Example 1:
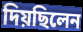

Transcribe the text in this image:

দিয়ছিলেন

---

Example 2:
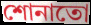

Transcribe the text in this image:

শোনাতো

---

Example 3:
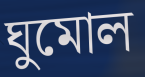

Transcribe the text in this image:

ঘুমোল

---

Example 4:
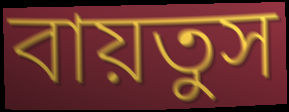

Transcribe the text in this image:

বায়তুস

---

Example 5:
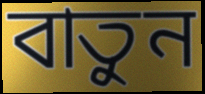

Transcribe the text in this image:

বাতুন